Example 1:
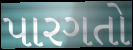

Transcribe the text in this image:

પારગતો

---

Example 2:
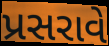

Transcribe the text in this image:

પ્રસરાવે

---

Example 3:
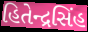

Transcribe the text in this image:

હિતેન્દ્રસિંહ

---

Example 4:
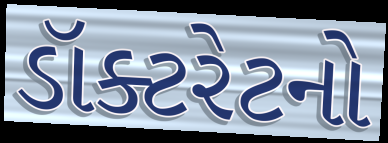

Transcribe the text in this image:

ડૉક્ટરેટનો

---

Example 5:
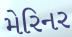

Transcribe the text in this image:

મેરિનર